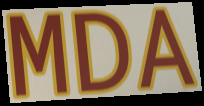
MDA